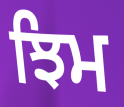
ਝਿਮ